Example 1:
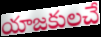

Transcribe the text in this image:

యాజకులచే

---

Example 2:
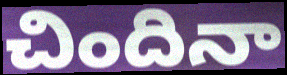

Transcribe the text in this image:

చిందినా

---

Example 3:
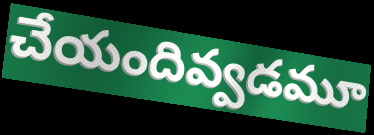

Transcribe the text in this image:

చేయందివ్వడమూ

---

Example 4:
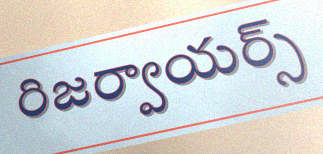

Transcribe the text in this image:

రిజర్వాయర్స్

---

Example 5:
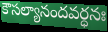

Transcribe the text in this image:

కౌసల్యానందవర్ధనః